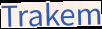
Trakem